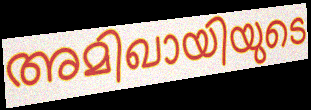
അമിഖായിയുടെ